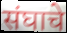
संघाचे